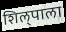
शिल्पाला